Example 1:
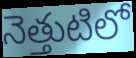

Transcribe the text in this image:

నెత్తుటిలో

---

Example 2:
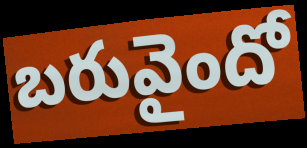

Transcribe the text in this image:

బరువైందో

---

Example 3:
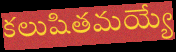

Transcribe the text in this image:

కలుషితమయ్యే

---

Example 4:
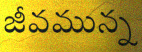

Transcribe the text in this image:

జీవమున్న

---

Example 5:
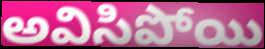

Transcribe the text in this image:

అవిసిపోయి